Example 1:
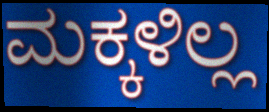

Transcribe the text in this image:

ಮಕ್ಕಳಿಲ್ಲ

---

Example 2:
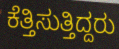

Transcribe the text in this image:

ಕೆತ್ತಿಸುತ್ತಿದ್ದರು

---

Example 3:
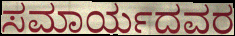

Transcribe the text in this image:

ಸಮಾರ್ಯದವರ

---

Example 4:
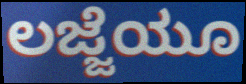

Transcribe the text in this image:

ಲಜ್ಜೆಯೂ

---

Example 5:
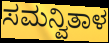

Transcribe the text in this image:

ಸಮನ್ವಿತಾಳ